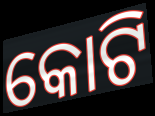
କୋଟି